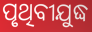
ପୃଥିବୀଯୁଦ୍ଧ